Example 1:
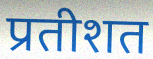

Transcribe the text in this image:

प्रतीशत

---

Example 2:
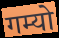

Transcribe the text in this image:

गम्यो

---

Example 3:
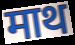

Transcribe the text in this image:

माथ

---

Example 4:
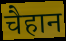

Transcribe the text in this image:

चैहान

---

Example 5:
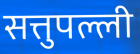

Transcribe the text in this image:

सत्तुपल्ली